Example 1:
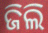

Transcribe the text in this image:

ଜିଲି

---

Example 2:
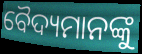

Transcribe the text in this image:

ବୈଦ୍ୟମାନଙ୍କୁ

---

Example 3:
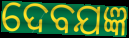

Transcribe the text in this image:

ଦେବଯଜ୍ଞ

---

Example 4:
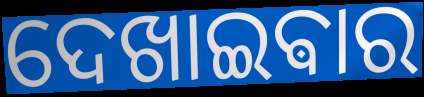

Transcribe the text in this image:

ଦେଖାଇଵାର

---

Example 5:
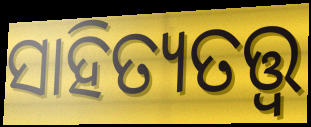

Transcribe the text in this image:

ସାହିତ୍ୟତତ୍ତ୍ୱ